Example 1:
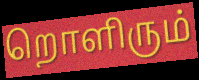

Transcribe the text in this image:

றொளிரும்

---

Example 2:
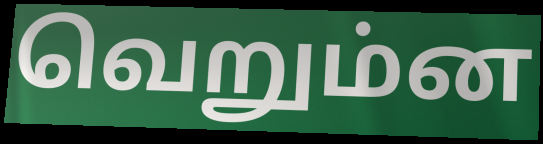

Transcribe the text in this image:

வெறும்ன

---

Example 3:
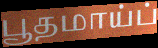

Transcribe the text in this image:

பூதமாய்ப்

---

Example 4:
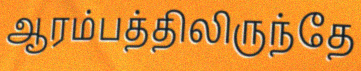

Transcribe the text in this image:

ஆரம்பத்திலிருந்தே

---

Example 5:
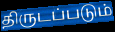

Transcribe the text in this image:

திருடப்படும்